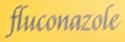
fluconazole